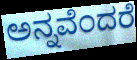
ಅನ್ನವೆಂದರೆ